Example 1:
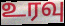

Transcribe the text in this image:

உரவு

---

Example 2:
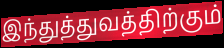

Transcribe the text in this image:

இந்துத்துவத்திற்கும்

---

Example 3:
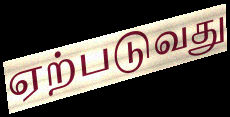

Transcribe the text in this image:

ஏற்படுவது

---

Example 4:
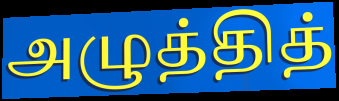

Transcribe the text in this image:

அழுத்தித்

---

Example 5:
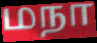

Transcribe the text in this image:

மநா